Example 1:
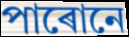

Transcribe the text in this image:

পাৰোনে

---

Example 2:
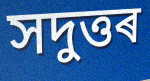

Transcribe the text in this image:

সদুত্তৰ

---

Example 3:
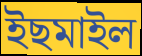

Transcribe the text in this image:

ইছমাইল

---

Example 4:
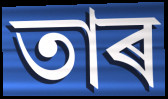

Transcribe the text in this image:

তাৰ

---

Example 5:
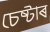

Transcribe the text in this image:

চেষ্টাৰ